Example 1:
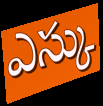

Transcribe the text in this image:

ఎస్కు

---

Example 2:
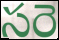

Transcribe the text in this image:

సరె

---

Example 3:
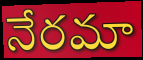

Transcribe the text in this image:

నేరమా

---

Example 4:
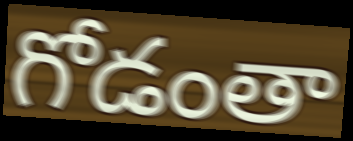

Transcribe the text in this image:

గోడంతా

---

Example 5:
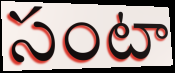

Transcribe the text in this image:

సంటా